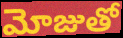
మోజుతో